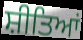
ਸ਼ੀਤਿਆਂ